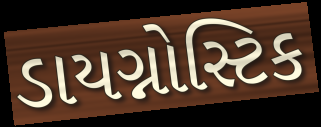
ડાયગ્નોસ્ટિક